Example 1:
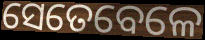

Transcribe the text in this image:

ସେତେବେଳେ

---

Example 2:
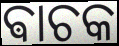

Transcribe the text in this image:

ଵାଚକ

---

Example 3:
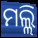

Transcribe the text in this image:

ମଲ୍ଲି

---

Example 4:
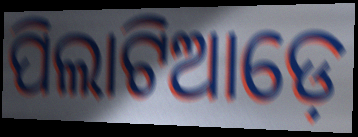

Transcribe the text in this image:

ପିଲାଟିଆଡ଼େ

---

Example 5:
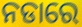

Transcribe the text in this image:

ନଡାରେ